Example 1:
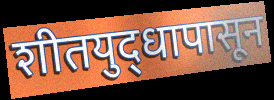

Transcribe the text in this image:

शीतयुद्धापासून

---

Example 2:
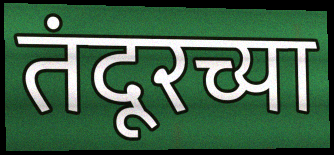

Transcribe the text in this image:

तंदूरच्या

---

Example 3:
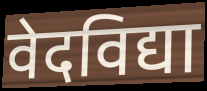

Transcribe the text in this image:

वेदविद्या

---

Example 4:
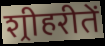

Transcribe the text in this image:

श्रीहरीतें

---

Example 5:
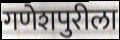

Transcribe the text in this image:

गणेशपुरीला